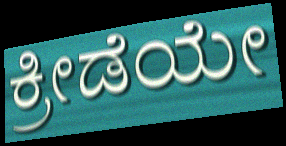
ಕ್ರೀಡೆಯೇ